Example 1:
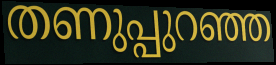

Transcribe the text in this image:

തണുപ്പുറഞ്ഞ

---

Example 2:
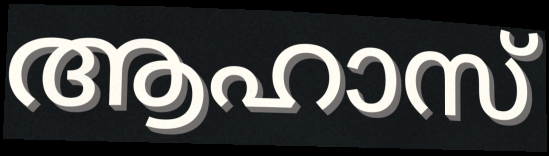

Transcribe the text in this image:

ആഹാസ്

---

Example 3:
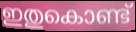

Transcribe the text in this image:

ഇതുകൊണ്ട്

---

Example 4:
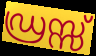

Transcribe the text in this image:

ഡ്രസ്സ്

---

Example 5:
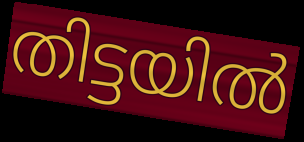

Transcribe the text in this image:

തിട്ടയിൽ